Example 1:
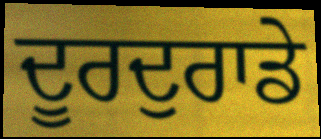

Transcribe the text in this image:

ਦੂਰਦੁਰਾਡੇ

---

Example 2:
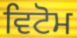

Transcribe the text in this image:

ਵਿਟੋਮ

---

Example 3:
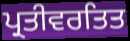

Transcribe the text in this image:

ਪ੍ਰਤੀਵਰਤਿਤ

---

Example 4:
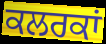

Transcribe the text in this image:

ਕਲਰਕਾਂ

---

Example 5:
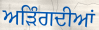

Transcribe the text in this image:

ਅੜਿੰਗਦੀਆਂ